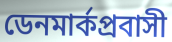
ডেনমার্কপ্রবাসী